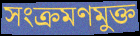
সংক্রমণমুক্ত